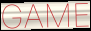
GAME